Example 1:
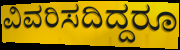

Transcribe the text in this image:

ವಿವರಿಸದಿದ್ದರೂ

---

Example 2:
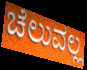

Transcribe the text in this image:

ಚೆಲುವಲ್ಲ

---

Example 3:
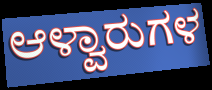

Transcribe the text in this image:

ಆಳ್ವಾರುಗಳ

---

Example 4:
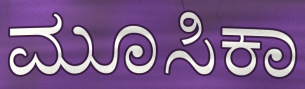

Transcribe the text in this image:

ಮೂಸಿಕಾ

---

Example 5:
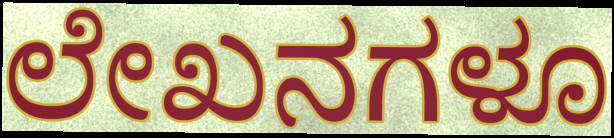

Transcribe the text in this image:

ಲೇಖನಗಳೂ